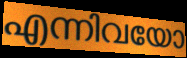
എന്നിവയോ